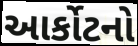
આર્કોટનો